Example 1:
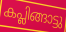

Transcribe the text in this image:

കപ്ലിങ്ങാട്ടു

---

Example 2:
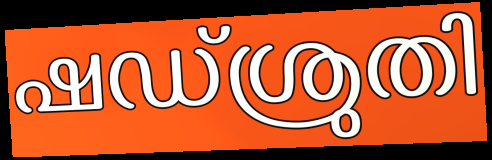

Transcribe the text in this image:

ഷഡ്ശ്രുതി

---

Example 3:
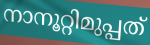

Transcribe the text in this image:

നാനൂറ്റിമുപ്പത്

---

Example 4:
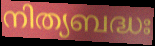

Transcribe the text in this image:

നിത്യബദ്ധഃ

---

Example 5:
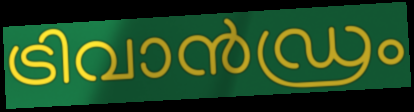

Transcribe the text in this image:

ട്രിവാൻഡ്രം